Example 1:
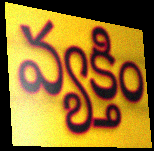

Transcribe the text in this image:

వ్యక్తిం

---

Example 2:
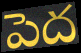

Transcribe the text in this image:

పెద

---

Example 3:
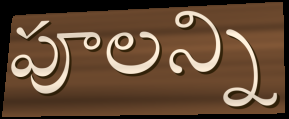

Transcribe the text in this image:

పూలన్ని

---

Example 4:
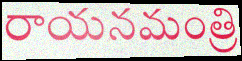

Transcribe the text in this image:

రాయనమంత్రి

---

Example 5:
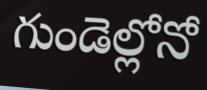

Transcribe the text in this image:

గుండెల్లోనో